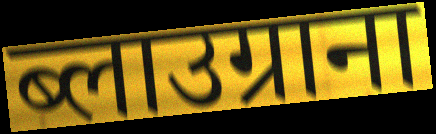
ब्लाउग्राना